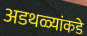
अडथळ्यांकडे